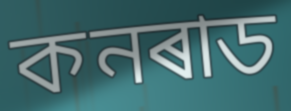
কনৰাড